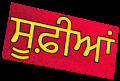
ਸੂਫ਼ੀਆਂ